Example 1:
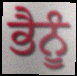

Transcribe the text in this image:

ਭੈਨੂੰ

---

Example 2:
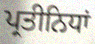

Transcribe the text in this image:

ਪ੍ਰਤੀਨਿਧਾਂ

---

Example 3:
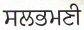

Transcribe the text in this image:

ਸਲਭਮਣੀ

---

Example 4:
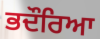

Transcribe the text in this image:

ਭਦੌਰਿਆ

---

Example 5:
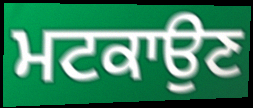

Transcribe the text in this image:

ਮਟਕਾਉਣ